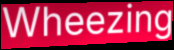
Wheezing